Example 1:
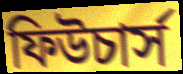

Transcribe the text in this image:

ফিউচার্স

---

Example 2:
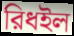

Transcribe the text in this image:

রিধইল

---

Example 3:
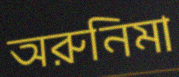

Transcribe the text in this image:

অরুনিমা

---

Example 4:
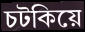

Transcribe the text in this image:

চটকিয়ে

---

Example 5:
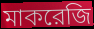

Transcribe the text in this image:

মাকরেজি